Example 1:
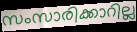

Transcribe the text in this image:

സംസാരിക്കാറില്ല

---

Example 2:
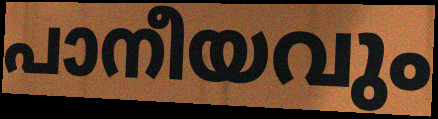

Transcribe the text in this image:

പാനീയവും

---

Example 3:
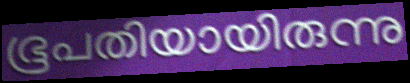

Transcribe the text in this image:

ഭൂപതിയായിരുന്നു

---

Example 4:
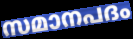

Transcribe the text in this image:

സമാനപദം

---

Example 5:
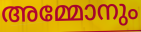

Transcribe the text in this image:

അമ്മോനും